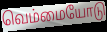
வெம்மையோடு